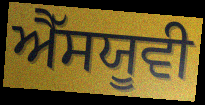
ਐੱਸਯੂਵੀ